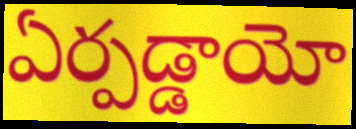
ఏర్పడ్డాయో